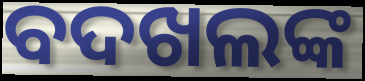
ବଦଖଲଙ୍କ